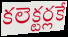
కలెక్టర్లకే